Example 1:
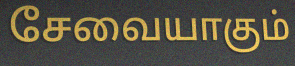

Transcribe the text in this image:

சேவையாகும்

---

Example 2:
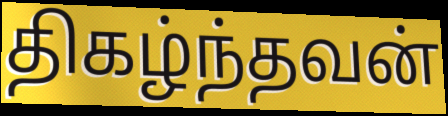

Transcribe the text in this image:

திகழ்ந்தவன்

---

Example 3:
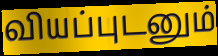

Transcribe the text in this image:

வியப்புடனும்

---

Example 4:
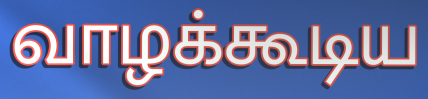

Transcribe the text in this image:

வாழக்கூடிய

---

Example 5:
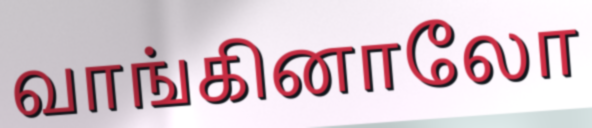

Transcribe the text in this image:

வாங்கினாலோ